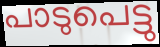
പാടുപെട്ടു